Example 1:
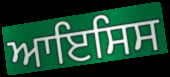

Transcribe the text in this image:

ਆਇਸਿਸ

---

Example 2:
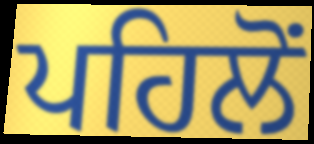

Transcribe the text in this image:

ਪਹਿਲੋਂ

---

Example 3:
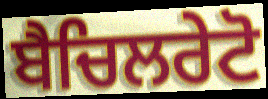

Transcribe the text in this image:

ਬੈਚਿਲਰੇਟੋ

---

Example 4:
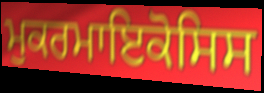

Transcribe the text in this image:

ਮੁਕਰਮਾਇਕੋਸਿਸ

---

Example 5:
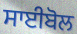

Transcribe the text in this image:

ਸਾਈਬੋਲ